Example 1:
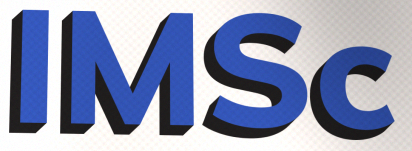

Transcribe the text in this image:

IMSc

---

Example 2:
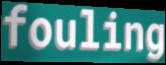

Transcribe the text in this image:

fouling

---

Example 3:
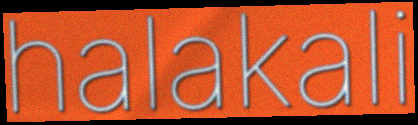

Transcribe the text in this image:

halakali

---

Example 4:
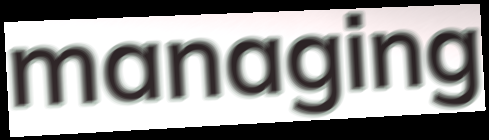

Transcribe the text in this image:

managing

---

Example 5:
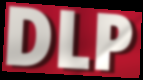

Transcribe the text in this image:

DLP